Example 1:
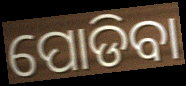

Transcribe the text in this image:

ପୋଡିବା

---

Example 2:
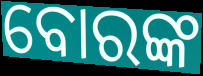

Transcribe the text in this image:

ବୋରଙ୍କ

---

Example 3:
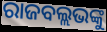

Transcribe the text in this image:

ରାଜବଲ୍ଲଭଙ୍କୁ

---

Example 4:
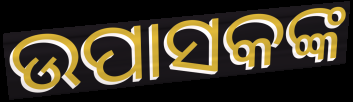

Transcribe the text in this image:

ଉପାସକଙ୍କ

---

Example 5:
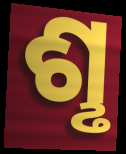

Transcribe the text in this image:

ଶୢ